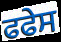
ਫਫੇਸ